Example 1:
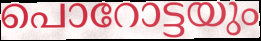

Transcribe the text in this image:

പൊറോട്ടയും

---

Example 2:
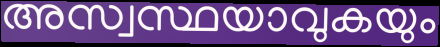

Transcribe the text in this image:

അസ്വസ്ഥയാവുകയും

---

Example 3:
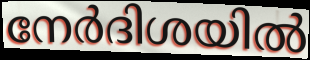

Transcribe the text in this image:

നേർദിശയിൽ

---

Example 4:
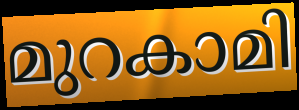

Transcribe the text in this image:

മുറകാമി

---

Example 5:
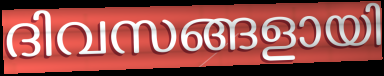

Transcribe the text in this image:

ദിവസങ്ങളായി